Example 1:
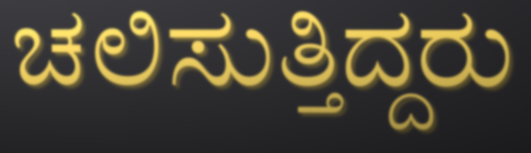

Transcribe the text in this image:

ಚಲಿಸುತ್ತಿದ್ದರು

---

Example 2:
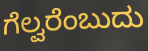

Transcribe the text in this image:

ಗೆಲ್ವರೆಂಬುದು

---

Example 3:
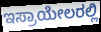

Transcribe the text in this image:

ಇಸ್ರಾಯೇಲರಲ್ಲಿ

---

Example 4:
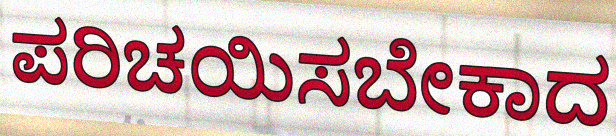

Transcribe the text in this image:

ಪರಿಚಯಿಸಬೇಕಾದ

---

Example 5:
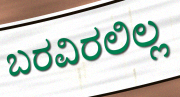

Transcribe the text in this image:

ಬರವಿರಲಿಲ್ಲ